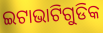
ଇଟାଭାଟିଗୁଡିକ